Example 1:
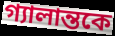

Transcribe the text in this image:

গ্যালান্তকে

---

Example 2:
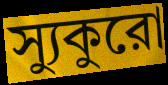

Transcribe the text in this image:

স্যুকুরো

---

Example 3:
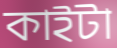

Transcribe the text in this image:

কাইটা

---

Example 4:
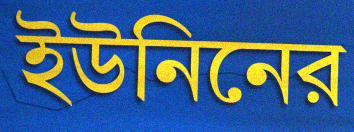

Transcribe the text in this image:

ইউনিনের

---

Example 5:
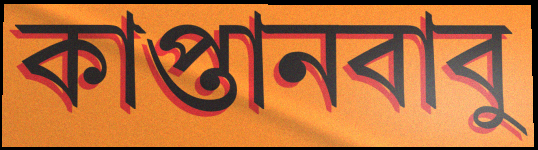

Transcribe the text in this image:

কাপ্তানবাবু